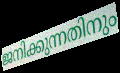
ജനിക്കുന്നതിനും